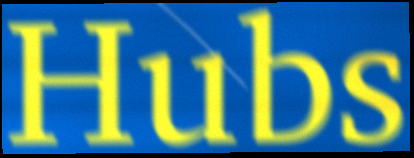
Hubs